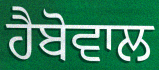
ਹੈਬੋਵਾਲ